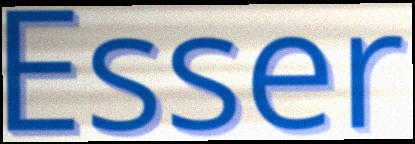
Esser